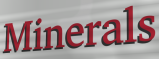
Minerals